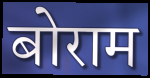
बोराम